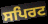
ਸਪਿਰਟ